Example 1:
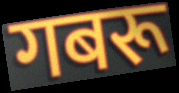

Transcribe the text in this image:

गबरू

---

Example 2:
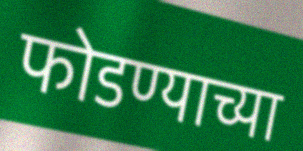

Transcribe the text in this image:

फोडण्याच्या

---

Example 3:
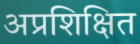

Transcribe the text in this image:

अप्रशिक्षित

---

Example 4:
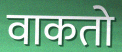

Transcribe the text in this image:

वाकतो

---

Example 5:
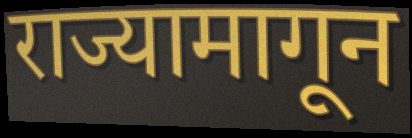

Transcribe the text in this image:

राज्यामागून